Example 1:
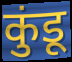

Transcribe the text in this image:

कुंडू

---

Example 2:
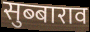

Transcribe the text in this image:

सुब्‍बाराव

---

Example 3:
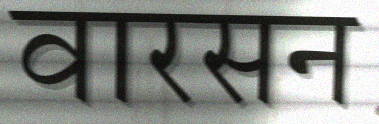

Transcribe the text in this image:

वारसन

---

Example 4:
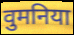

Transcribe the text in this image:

वुमनिया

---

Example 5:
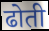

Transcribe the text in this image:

ढोती